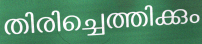
തിരിച്ചെത്തിക്കും